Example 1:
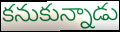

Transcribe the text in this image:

కనుకున్నాడు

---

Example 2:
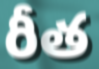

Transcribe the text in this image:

రీత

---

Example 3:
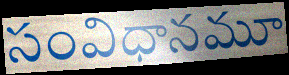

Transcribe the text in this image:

సంవిధానమూ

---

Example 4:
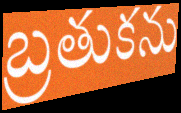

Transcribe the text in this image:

బ్రతుకను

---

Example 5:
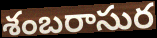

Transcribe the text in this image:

శంబరాసుర